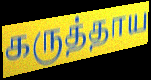
கருத்தாய